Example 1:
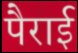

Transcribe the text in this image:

पैराई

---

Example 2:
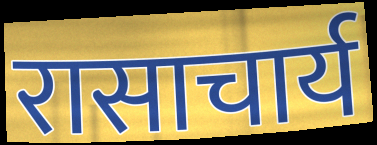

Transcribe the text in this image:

रासाचार्य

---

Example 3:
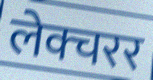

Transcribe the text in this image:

लेक्‍चरर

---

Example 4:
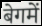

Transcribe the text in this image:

बेगमें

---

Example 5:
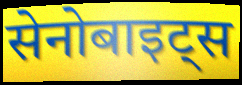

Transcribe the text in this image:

सेनोबाइट्स